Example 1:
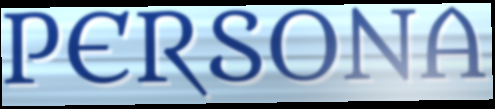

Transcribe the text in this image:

PERSONA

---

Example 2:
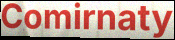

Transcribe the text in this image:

Comirnaty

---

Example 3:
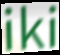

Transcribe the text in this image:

iki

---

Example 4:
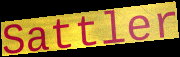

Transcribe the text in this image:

Sattler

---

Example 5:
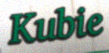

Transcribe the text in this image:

Kubie